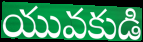
యువకుడి